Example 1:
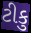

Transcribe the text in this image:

ટીકુ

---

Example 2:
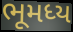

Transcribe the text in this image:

ભૂમધ્ય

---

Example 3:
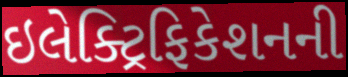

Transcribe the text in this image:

ઇલેક્ટ્રિફિકેશનની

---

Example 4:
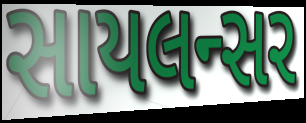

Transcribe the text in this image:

સાયલન્સર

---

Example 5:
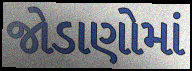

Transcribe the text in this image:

જોડાણોમાં